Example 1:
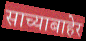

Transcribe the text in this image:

साच्याबाहेर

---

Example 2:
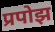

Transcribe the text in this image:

प्रपोझ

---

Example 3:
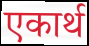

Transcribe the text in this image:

एकार्थ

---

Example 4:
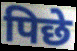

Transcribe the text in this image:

पिछे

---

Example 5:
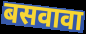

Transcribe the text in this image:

बसवावा